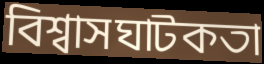
বিশ্বাসঘাটকতা